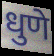
धुणे